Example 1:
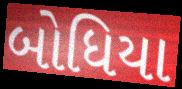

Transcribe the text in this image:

બોધિયા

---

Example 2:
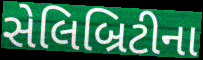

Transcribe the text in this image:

સેલિબ્રિટીના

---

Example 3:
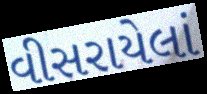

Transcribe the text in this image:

વીસરાયેલાં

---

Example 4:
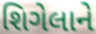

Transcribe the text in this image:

શિગેલાને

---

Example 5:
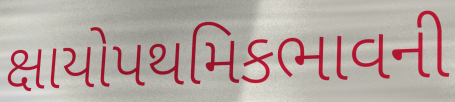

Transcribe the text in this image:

ક્ષાયોપથમિકભાવની